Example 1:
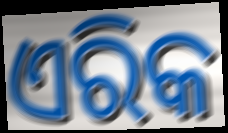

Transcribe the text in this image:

ଏରିକ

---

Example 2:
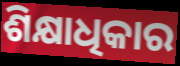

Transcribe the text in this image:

ଶିକ୍ଷାଧିକାର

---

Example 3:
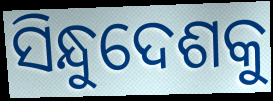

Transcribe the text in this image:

ସିନ୍ଧୁଦେଶକୁ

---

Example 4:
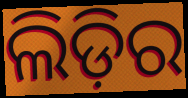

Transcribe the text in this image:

ଲିଡ଼ିର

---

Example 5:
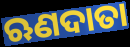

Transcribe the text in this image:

ଋଣଦାତା